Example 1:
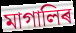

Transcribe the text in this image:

মাগালিৰ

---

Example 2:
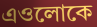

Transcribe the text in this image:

এওলোকে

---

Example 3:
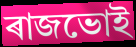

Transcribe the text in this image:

ৰাজভোই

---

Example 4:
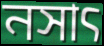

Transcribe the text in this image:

নসাৎ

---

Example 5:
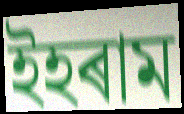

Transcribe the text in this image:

ইহৰাম